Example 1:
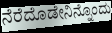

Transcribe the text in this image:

ನೆರೆದೊಡೇನಿನ್ನೊಂದು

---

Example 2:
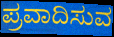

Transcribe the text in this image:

ಪ್ರವಾದಿಸುವ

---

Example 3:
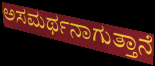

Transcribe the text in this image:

ಅಸಮರ್ಥನಾಗುತ್ತಾನೆ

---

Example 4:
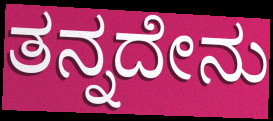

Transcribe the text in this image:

ತನ್ನದೇನು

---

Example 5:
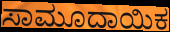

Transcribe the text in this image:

ಸಾಮೂದಾಯಿಕ